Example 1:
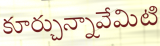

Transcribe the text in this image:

కూర్చున్నావేమిటి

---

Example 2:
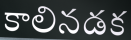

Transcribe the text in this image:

కాలినడక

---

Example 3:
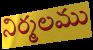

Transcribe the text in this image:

నిర్మలము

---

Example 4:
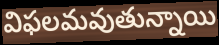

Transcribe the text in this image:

విఫలమవుతున్నాయి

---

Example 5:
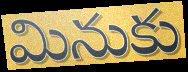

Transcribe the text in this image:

మినుకు